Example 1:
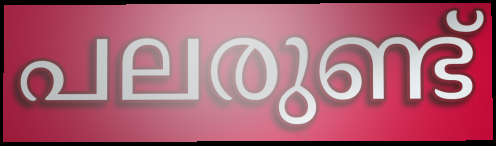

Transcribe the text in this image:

പലരുണ്ട്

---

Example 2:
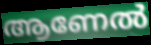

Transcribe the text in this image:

ആണേൽ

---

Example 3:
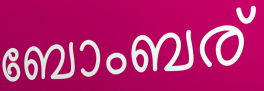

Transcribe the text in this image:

ബോംബര്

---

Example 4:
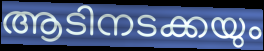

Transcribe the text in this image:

ആടിനടക്കയും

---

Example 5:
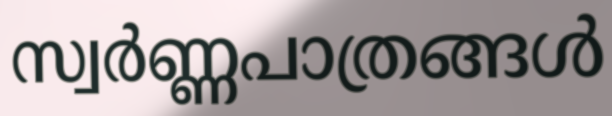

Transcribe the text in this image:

സ്വർണ്ണപാത്രങ്ങൾ